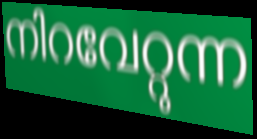
നിറവേറ്റുന്ന